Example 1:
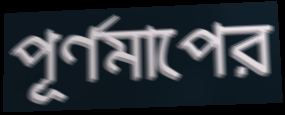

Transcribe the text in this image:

পূর্ণমাপের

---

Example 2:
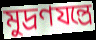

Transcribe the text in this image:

মুদ্রণযন্ত্রে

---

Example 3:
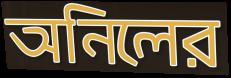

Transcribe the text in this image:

অনিলের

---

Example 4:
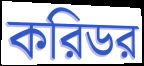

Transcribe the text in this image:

করিডর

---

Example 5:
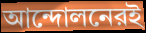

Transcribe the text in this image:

আন্দোলনেরই